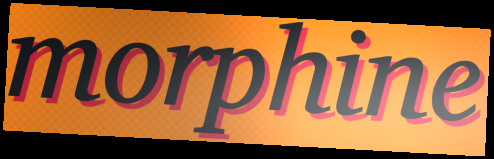
morphine